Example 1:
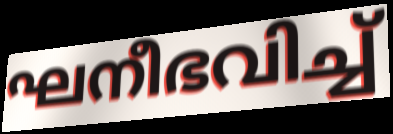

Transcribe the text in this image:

ഘനീഭവിച്ച്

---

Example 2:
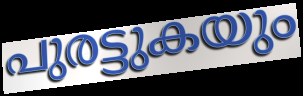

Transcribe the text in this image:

പുരട്ടുകയും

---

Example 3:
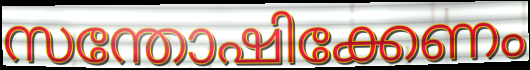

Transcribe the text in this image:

സന്തോഷിക്കേണം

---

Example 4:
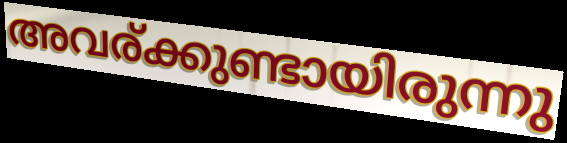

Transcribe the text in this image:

അവര്ക്കുണ്ടായിരുന്നു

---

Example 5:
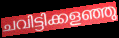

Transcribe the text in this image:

ചവിട്ടിക്കളഞ്ഞു